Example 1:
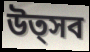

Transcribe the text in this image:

উত্সব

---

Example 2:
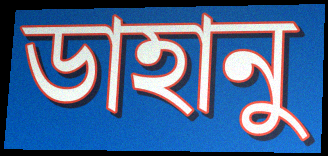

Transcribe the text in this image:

ডাহানু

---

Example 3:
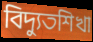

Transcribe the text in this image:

বিদ্যুতশিখা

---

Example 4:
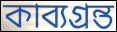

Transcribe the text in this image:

কাব্যগ্রন্ত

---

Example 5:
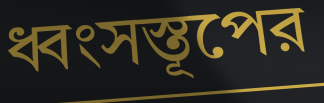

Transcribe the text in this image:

ধ্বংসস্তূপের